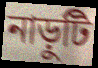
নাড়ুটি